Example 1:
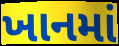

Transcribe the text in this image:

ખાનમાં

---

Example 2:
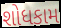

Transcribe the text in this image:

શોધકામ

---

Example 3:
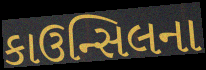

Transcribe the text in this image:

કાઉન્સિલના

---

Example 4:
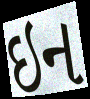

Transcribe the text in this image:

ઇન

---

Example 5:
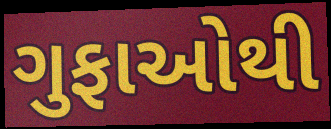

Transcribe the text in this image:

ગુફાઓથી